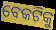
ବେକଟିକୁ